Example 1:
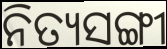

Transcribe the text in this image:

ନିତ୍ୟସଙ୍ଗୀ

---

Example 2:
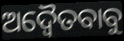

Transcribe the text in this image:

ଅଦ୍ୱୈତବାବୁ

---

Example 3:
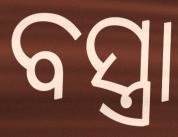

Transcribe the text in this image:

ବସ୍ତ୍ରା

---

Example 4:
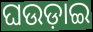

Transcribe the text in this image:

ଘଉଡ଼ାଇ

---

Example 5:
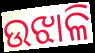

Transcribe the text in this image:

ଉଝାଳି